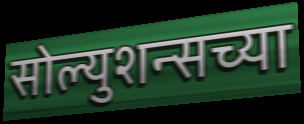
सोल्युशन्सच्या